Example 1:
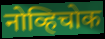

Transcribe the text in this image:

नोव्हिचोक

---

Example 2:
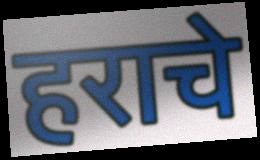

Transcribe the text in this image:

हराचे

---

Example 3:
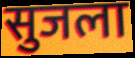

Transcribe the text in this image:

सुजला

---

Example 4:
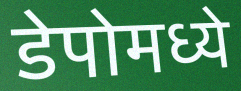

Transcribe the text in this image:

डेपोमध्ये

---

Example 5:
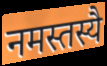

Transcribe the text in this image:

नमस्तस्यै